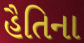
હૈતિના